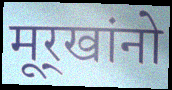
मूर्खांनो